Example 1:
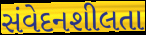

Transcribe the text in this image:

સંવેદનશીલતા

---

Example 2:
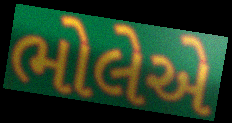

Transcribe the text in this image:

ભોલેએ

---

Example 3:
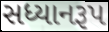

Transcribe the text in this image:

સધ્યાનરૂપ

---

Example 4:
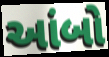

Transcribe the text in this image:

આંબો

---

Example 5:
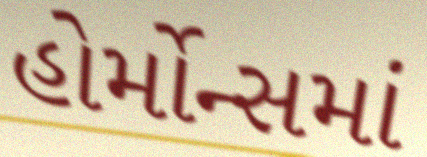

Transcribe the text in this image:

હોર્મોન્સમાં